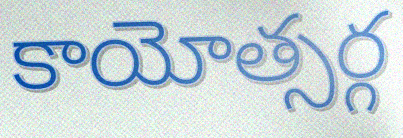
కాయోత్సర్గ